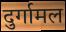
दुर्गामल